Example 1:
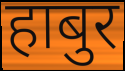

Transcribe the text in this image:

हाबुर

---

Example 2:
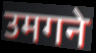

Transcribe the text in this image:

उमगने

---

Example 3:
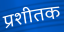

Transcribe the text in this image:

प्रशीतक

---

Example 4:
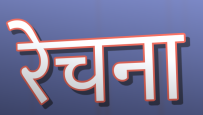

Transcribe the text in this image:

रेचना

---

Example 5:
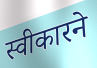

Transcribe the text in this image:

स्वीकारने